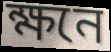
ক্ষনে